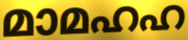
മാമഹഹ